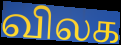
விலக